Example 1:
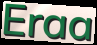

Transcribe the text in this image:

Eraa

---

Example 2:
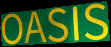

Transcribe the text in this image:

OASIS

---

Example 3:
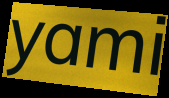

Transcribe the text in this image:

yami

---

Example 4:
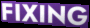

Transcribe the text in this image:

FIXING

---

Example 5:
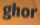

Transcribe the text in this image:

ghor